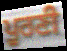
ਪੂਰਣੀ